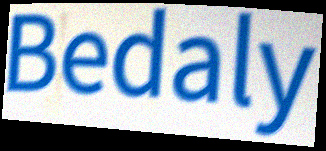
Bedaly